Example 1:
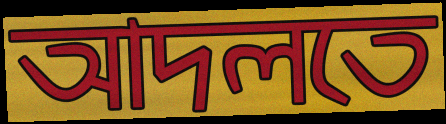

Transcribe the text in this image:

আদলতে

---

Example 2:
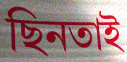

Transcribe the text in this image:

ছিনতাই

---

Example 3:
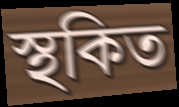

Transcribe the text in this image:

স্থকিত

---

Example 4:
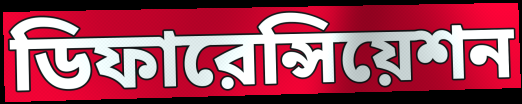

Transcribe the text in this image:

ডিফারেন্সিয়েশন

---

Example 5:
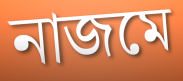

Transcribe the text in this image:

নাজমে